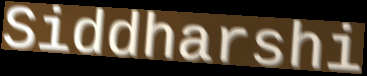
Siddharshi